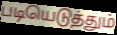
படியெடுத்தும்